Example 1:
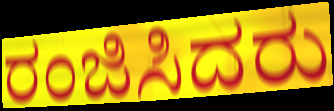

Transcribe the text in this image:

ರಂಜಿಸಿದರು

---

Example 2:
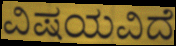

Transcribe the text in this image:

ವಿಷಯವಿದೆ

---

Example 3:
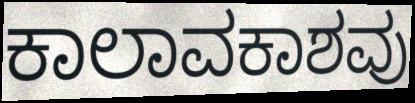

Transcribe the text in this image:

ಕಾಲಾವಕಾಶವು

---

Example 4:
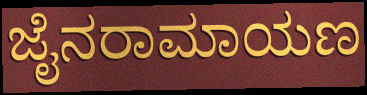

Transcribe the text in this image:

ಜೈನರಾಮಾಯಣ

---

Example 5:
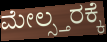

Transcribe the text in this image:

ಮೇಲ್ಸ್ತರಕ್ಕೆ